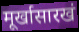
मूर्खासारखं